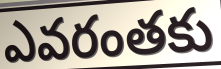
ఎవరంతకు